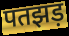
पतझड़